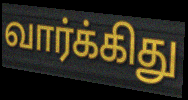
வார்க்கிது